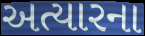
અત્યારના